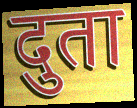
दुता